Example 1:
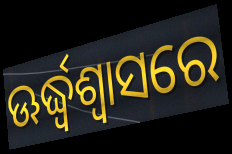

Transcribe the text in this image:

ଊର୍ଦ୍ଧ୍ୱଶ୍ୱାସରେ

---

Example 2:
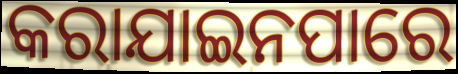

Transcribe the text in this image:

କରାଯାଇନପାରେ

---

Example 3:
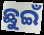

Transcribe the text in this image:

ଛୁଇଁ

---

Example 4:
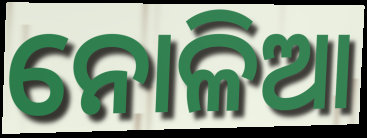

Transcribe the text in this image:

ନୋଳିଆ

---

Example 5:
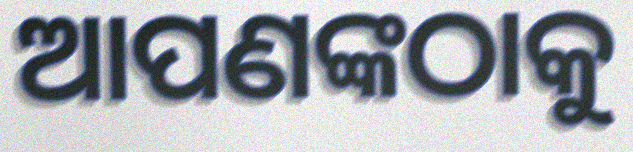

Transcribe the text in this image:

ଆପଣଙ୍କଠାକୁ